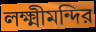
লক্ষ্মীমন্দির